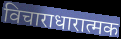
विचाराधारात्मक